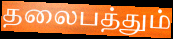
தலைபத்தும்